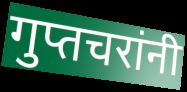
गुप्तचरांनी